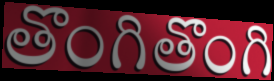
తొంగితొంగి